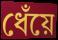
ধেঁয়ে